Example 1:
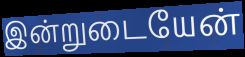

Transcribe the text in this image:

இன்றுடையேன்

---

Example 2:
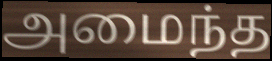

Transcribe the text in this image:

அமைந்த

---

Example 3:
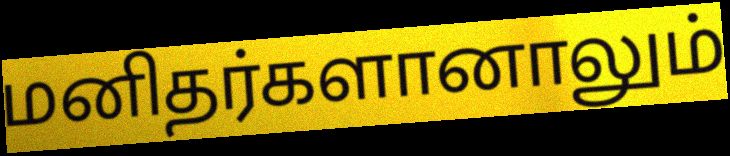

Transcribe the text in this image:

மனிதர்களானாலும்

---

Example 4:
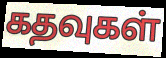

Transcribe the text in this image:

கதவுகள்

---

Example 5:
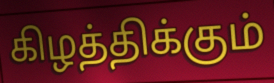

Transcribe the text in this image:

கிழத்திக்கும்